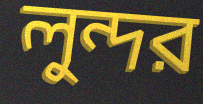
লুন্দর